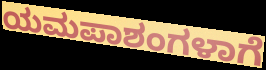
ಯಮಪಾಶಂಗಳಾಗೆ